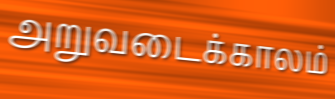
அறுவடைக்காலம்